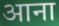
आना